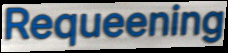
Requeening